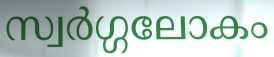
സ്വർഗ്ഗലോകം